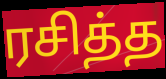
ரசித்த